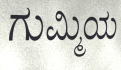
ಗುಮ್ಮಿಯ